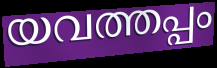
യവത്തപ്പം